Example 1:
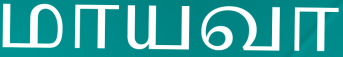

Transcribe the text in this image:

மாயவா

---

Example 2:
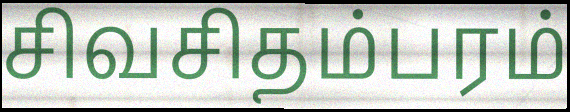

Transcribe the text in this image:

சிவசிதம்பரம்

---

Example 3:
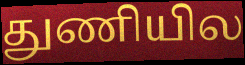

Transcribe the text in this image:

துணியில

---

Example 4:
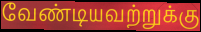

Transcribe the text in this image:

வேண்டியவற்றுக்கு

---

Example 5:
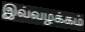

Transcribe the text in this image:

இவ்வழக்கம்